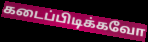
கடைப்பிடிக்கவோ